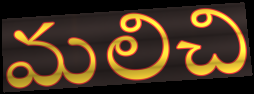
మలిచి